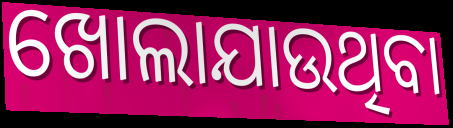
ଖୋଲାଯାଉଥିବା